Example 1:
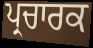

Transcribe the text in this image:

ਪ੍ਰਚਾਰਕ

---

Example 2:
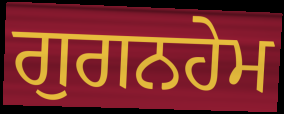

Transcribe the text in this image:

ਗੁਗਨਹੇਮ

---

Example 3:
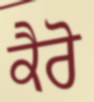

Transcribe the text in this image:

ਕੈਰੋ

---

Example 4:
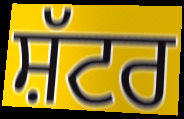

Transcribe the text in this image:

ਸ਼ੱਟਰ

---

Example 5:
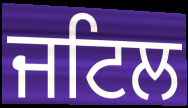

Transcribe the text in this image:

ਜਟਿਲ